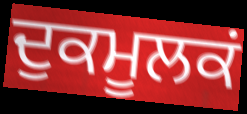
ਦੁਕਮੂਲਕਂ